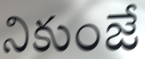
నికుంజే